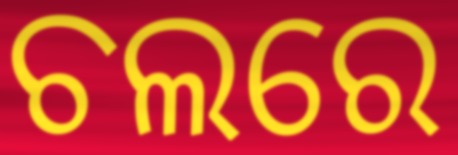
ଚଲରେ